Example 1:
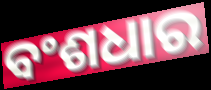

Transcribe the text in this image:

ବଂଶଧାର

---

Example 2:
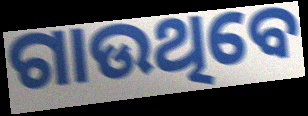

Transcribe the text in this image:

ଗାଉଥିବେ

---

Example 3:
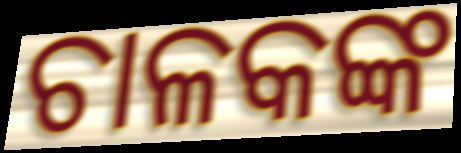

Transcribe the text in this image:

ଚାଳକଙ୍କ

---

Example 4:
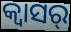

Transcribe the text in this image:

କ୍ୱାସର୍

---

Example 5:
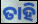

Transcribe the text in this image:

ତାହି